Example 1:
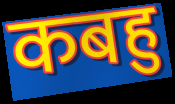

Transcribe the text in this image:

कबहु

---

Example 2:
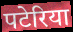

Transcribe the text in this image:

पटेरिया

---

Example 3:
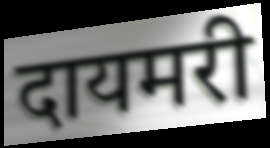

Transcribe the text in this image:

दायमरी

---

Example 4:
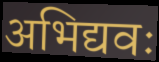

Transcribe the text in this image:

अभिद्यवः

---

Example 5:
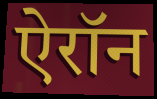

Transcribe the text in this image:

ऐरॉन